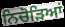
ਨਿਚੋੜਿਆਂ